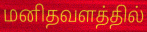
மனிதவளத்தில்